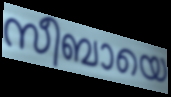
സീബായെ